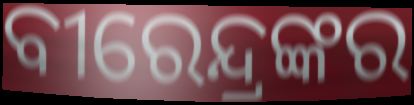
ବୀରେନ୍ଦ୍ରଙ୍କର